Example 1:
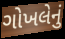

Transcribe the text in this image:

ગોખલેનું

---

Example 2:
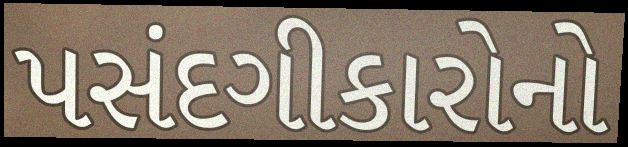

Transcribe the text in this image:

પસંદગીકારોનો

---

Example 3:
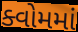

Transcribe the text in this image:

ક્વોમમાં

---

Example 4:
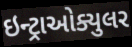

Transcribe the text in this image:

ઇન્ટ્રાઓક્યુલર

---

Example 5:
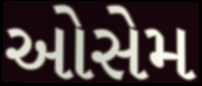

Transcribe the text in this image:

ઓસેમ